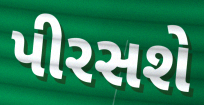
પીરસશે